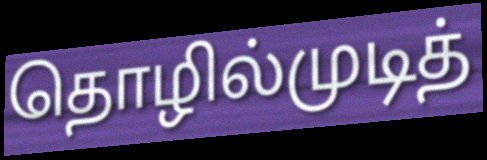
தொழில்முடித்